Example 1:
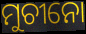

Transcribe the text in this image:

ମୁଚୀନୋ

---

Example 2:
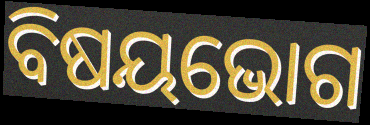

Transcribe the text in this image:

ବିଷୟଭୋଗ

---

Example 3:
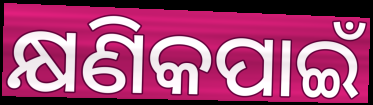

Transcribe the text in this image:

କ୍ଷଣିକପାଇଁ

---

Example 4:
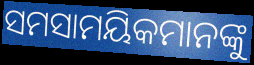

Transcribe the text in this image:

ସମସାମୟିକମାନଙ୍କୁ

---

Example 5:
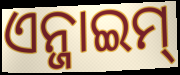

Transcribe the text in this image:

ଏନ୍ଜାଇମ୍